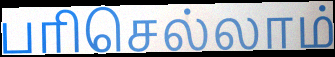
பரிசெல்லாம்